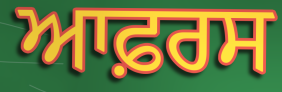
ਆਫ਼ਰਸ